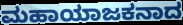
ಮಹಾಯಾಜಕನಾದ